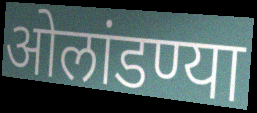
ओलांडण्या